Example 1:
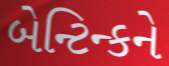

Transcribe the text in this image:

બેન્ટિન્કને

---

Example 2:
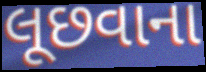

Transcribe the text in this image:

લૂછવાના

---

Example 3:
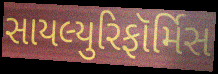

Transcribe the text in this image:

સાયલ્યુરિફૉર્મિસ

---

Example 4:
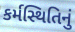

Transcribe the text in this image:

કર્મસ્થિતિનું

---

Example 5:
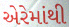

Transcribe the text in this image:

એરેમાંથી